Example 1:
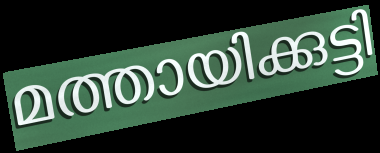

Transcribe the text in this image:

മത്തായിക്കുട്ടി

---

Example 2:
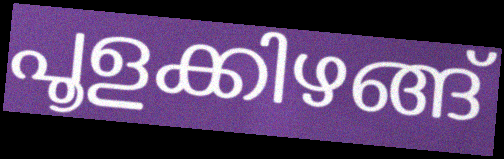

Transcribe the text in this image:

പൂളക്കിഴങ്ങ്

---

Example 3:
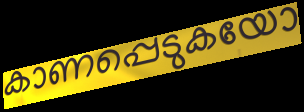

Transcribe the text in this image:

കാണപ്പെടുകയോ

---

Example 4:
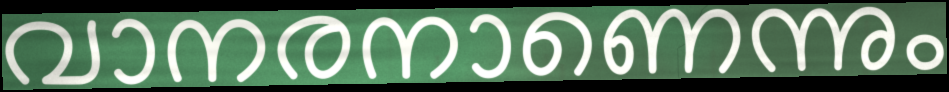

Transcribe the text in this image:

വാനരനാണെന്നും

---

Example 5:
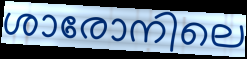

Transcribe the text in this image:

ശാരോനിലെ